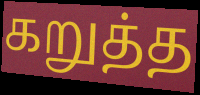
கறுத்த